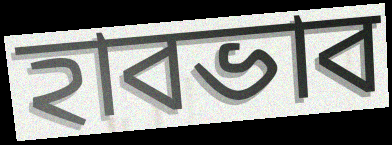
হাবভাব